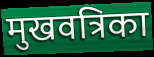
मुखवत्रिका